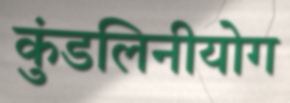
कुंडलिनीयोग